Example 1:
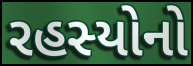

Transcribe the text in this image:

રહસ્યોનો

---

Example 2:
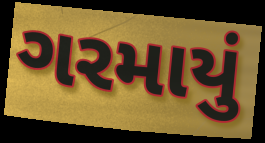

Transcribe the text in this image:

ગરમાયું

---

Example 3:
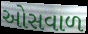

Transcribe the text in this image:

ઓસવાળ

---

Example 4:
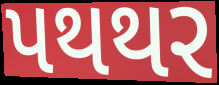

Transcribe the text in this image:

પથથર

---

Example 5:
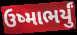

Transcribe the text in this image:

ઉષ્માભર્યું